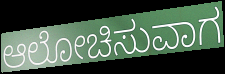
ಆಲೋಚಿಸುವಾಗ